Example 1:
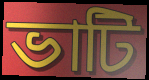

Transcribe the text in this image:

ভাটি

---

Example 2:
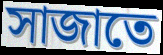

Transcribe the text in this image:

সাজাতে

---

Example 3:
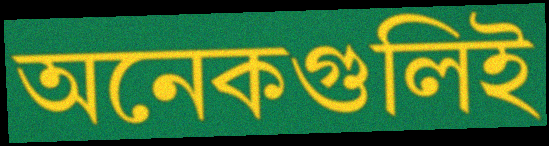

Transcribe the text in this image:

অনেকগুলিই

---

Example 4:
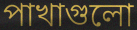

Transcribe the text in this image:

পাখাগুলো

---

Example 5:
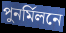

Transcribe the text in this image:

পুনর্মিলনে